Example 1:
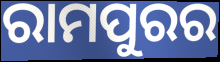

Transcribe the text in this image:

ରାମପୁରର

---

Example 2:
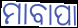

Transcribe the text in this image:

ମାବାପା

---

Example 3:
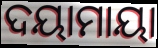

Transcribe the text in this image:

ଦୟାମାୟା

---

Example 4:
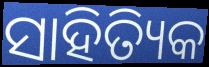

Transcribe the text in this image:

ସାହିତ୍ୟିକ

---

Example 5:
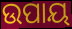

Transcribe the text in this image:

ଉପାୟ